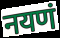
नयणं